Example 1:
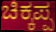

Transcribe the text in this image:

ಚಿಕ್ಕಪ್ಪ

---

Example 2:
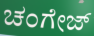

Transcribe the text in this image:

ಚಂಗೇಜ್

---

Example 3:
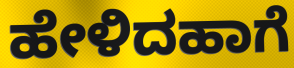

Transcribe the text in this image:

ಹೇಳಿದಹಾಗೆ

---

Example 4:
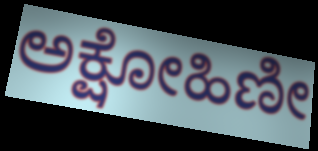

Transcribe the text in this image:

ಅಕ್ಷೋಹಿಣೀ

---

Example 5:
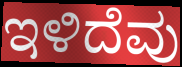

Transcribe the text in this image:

ಇಳಿದೆವು